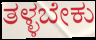
ತಳ್ಳಬೇಕು